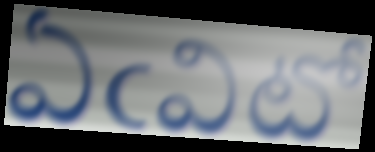
ఏఁవిటో